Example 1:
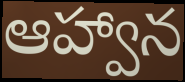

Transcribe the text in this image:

ఆహ్వాన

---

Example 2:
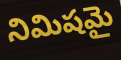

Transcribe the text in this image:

నిమిషమై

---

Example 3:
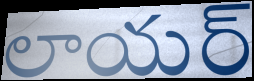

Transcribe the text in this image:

లాయర్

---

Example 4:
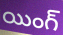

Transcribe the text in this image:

యింగ్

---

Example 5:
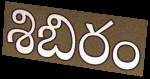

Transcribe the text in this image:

శిబిరం